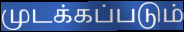
முடக்கப்படும்